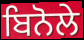
ਬਿਨੋਲੇ